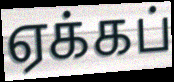
ஏக்கப்